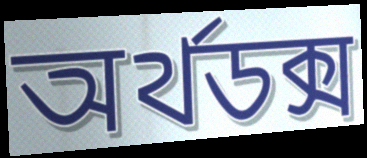
অর্থডক্স